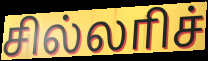
சில்லரிச்